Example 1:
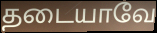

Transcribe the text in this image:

தடையாவே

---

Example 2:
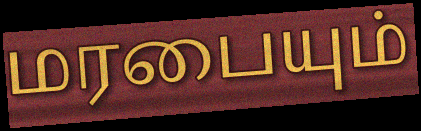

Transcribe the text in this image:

மரபையும்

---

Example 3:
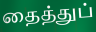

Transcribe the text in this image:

தைத்துப்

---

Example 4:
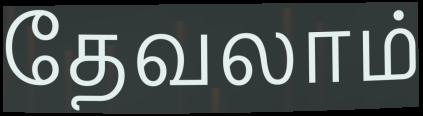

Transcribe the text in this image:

தேவலாம்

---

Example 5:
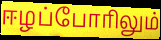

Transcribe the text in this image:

ஈழப்போரிலும்